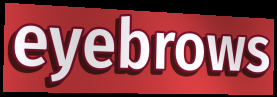
eyebrows